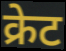
क्रेट